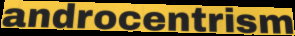
androcentrism